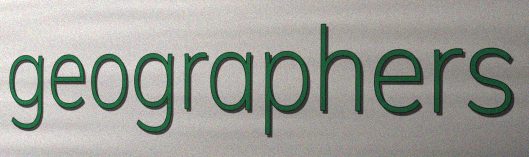
geographers